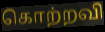
கொற்றவி